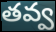
తవ్వ